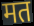
मत